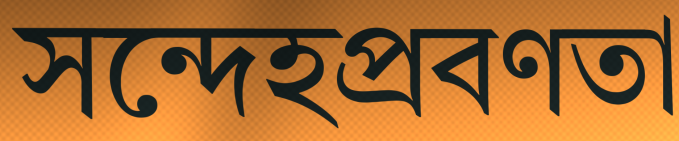
সন্দেহপ্রবণতা